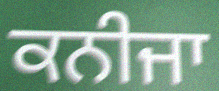
ਕਨੀਜਾ